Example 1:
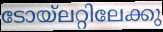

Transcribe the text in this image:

ടോയ്ലറ്റിലേക്കു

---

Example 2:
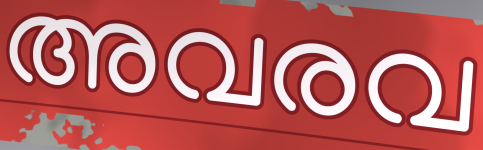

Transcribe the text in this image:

അവരവ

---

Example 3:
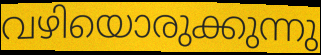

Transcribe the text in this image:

വഴിയൊരുക്കുന്നു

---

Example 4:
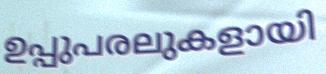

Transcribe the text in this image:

ഉപ്പുപരലുകളായി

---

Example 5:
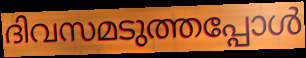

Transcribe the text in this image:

ദിവസമടുത്തപ്പോൾ